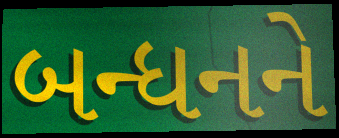
બન્ધનને